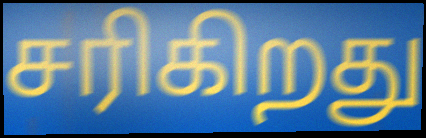
சரிகிறது